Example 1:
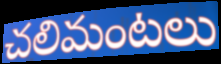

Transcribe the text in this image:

చలిమంటలు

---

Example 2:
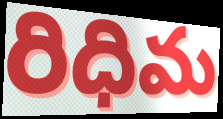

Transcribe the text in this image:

రిధిమ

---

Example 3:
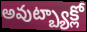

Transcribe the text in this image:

అవుట్బ్యాక్లో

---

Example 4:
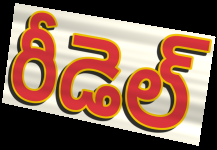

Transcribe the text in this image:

రీడెల్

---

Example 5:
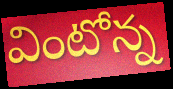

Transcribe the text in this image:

వింటోన్న